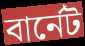
বার্নেট